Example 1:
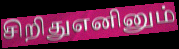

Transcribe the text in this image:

சிறிதுஎனினும்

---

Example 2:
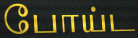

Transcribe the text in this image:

போய்ட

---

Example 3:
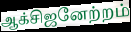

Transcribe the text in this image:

ஆக்சிஜனேற்றம்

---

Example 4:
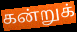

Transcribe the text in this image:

கன்றுக்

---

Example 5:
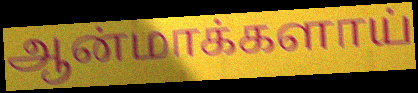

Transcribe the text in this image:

ஆன்மாக்களாய்